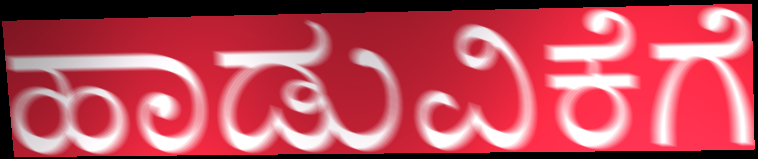
ಹಾಡುವಿಕೆಗೆ